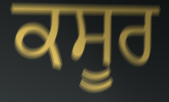
ਕਸੂਰ